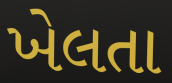
ખેલતા